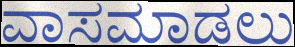
ವಾಸಮಾಡಲು